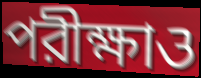
পরীক্ষাও